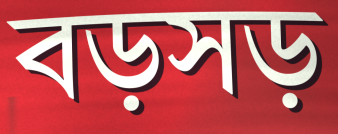
বড়সড়